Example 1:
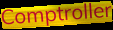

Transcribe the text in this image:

Comptroller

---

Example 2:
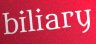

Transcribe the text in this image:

biliary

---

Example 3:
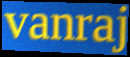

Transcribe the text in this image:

vanraj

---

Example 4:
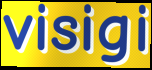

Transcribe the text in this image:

visigi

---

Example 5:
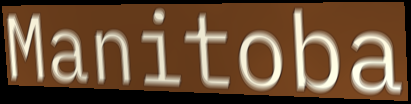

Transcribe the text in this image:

Manitoba